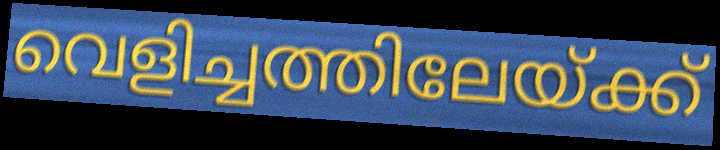
വെളിച്ചത്തിലേയ്ക്ക്